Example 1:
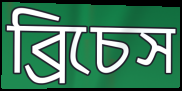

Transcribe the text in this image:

ব্রিচেস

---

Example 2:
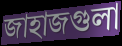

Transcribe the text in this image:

জাহাজগুলা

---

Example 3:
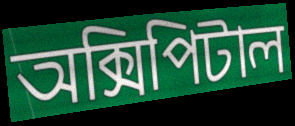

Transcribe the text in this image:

অক্সিপিটাল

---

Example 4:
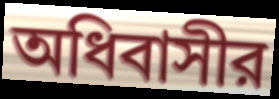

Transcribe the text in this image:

অধিবাসীর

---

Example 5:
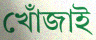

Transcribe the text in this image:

খোঁজাই